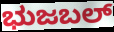
ಭುಜಬಲ್